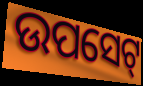
ଉପସେଟ୍